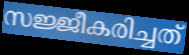
സജ്ജീകരിച്ചത്